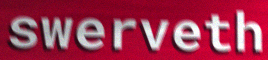
swerveth